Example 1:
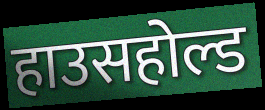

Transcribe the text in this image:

हाउसहोल्ड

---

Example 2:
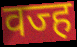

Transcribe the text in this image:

वज्ह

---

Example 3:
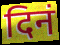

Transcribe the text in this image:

दिनं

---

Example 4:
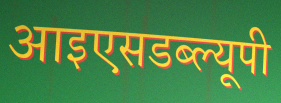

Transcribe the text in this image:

आइएसडब्ल्यूपी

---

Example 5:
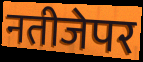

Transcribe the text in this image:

नतीजेपर